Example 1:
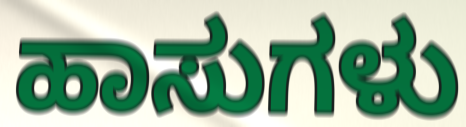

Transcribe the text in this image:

ಹಾಸುಗಳು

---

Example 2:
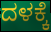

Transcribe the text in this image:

ದಳಕ್ಕೆ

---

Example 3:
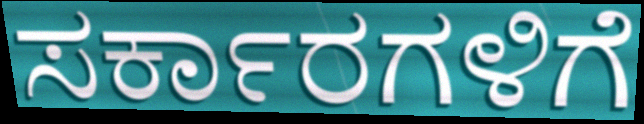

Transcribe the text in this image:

ಸರ್ಕಾರಗಳಿಗೆ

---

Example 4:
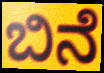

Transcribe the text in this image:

ಬಿನೆ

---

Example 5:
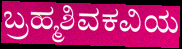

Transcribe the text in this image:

ಬ್ರಹ್ಮಶಿವಕವಿಯ